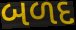
બળદ